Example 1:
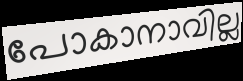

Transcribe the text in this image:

പോകാനാവില്ല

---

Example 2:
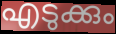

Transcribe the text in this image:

എടുക്കും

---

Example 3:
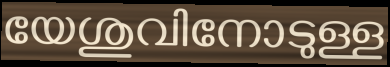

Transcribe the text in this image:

യേശുവിനോടുള്ള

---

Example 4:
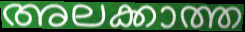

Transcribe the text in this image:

അലക്കാത്ത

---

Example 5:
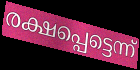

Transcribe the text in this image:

രക്ഷപ്പെട്ടെന്ന്